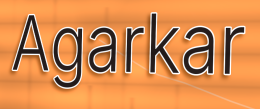
Agarkar